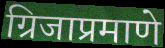
ग्रिजाप्रमाणे